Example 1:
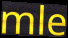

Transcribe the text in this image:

mle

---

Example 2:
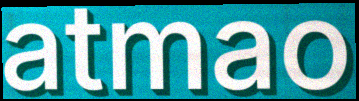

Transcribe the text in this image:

atmao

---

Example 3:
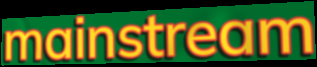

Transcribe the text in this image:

mainstream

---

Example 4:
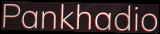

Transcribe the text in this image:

Pankhadio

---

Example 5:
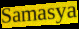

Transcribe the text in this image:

Samasya